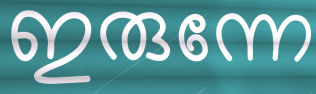
ഇരുന്നേ